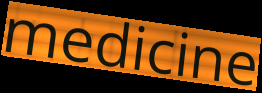
medicine